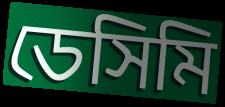
ডেসিমি